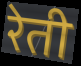
रेती